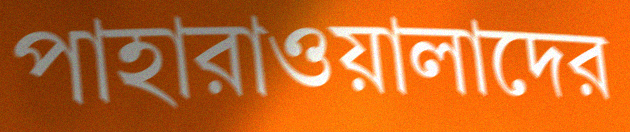
পাহারাওয়ালাদের